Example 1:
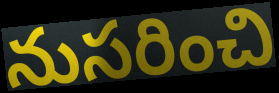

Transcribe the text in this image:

నుసరించి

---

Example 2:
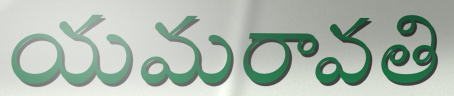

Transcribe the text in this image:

యమరావతి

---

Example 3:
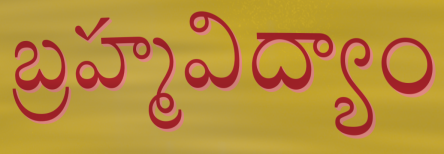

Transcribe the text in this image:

బ్రహ్మవిద్యాం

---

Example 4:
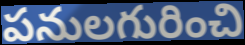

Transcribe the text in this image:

పనులగురించి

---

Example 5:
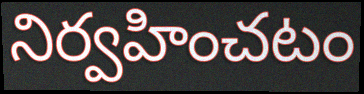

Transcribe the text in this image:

నిర్వహించటం